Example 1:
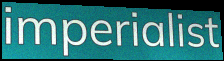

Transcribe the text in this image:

imperialist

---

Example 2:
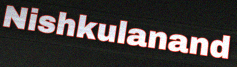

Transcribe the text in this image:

Nishkulanand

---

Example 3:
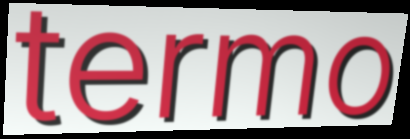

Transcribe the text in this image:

termo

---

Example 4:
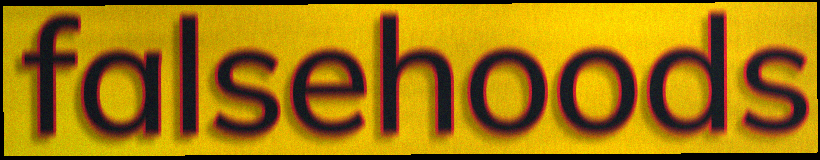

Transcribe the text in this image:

falsehoods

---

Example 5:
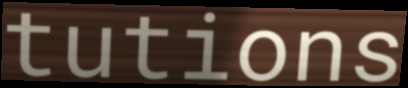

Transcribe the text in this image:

tutions